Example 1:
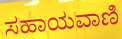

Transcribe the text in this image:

ಸಹಾಯವಾಣಿ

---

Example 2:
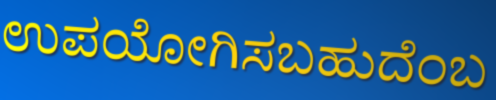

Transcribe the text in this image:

ಉಪಯೋಗಿಸಬಹುದೆಂಬ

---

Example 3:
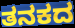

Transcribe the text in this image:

ತನಕದ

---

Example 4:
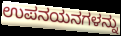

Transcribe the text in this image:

ಉಪನಯನಗಳನ್ನು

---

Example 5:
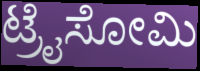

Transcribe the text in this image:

ಟ್ರೈಸೋಮಿ